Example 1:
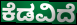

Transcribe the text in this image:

ಕೆಡವಿದೆ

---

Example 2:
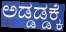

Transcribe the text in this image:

ಅಡ್ಡಡ್ಡಕ್ಕೆ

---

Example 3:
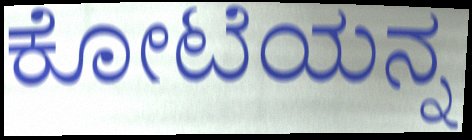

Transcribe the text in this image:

ಕೋಟೆಯನ್ನ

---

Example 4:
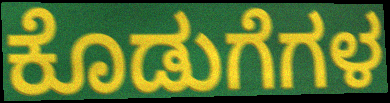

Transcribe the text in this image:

ಕೊಡುಗೆಗಳ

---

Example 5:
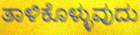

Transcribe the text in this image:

ತಾಳಿಕೊಳ್ಳುವುದು